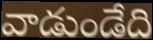
వాడుండేది